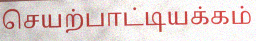
செயற்பாட்டியக்கம்